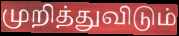
முறித்துவிடும்